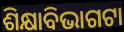
ଶିକ୍ଷାବିଭାଗଟା